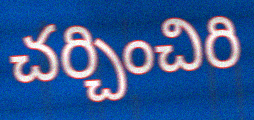
చర్చించిరి